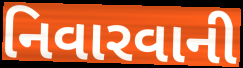
નિવારવાની